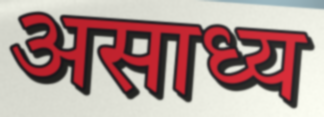
असाध्य